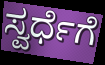
ಸ್ವರ್ಧೆಗೆ